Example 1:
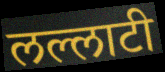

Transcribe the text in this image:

लल्लाटी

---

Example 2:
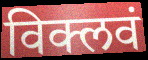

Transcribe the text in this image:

विक्लवं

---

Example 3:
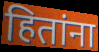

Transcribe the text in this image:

हितांना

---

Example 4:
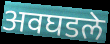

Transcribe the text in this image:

अवघडले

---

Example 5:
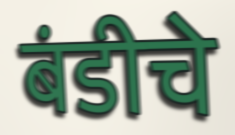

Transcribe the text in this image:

बंडीचे